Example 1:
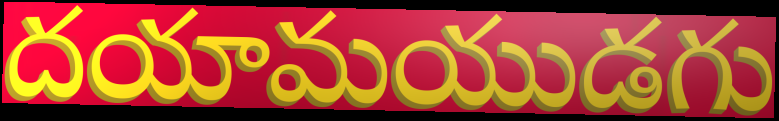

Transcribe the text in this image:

దయామయుడగు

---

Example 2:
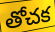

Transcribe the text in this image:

తోచక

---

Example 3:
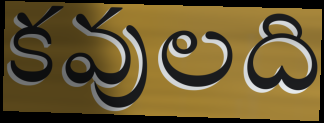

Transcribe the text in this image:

కవులది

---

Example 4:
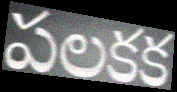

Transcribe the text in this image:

పలకక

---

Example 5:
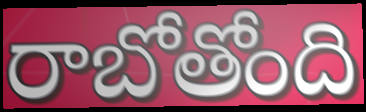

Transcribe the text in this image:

రాబోతోంది